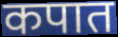
कपात